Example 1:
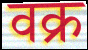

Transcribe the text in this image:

वक्र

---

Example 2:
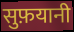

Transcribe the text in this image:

सुफ़यानी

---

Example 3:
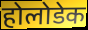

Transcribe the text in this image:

होलोडेक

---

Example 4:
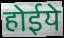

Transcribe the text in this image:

होईये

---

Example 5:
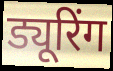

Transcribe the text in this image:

ड्यूरिंग